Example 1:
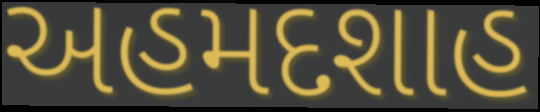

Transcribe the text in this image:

અહમદશાહ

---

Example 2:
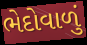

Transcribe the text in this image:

ભેદોવાળું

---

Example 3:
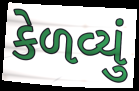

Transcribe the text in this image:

કેળવ્યું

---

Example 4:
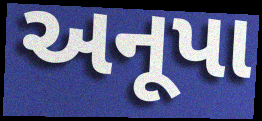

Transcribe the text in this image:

અનૂપા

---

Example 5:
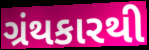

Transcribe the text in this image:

ગ્રંથકારથી